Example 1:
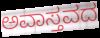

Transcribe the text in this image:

ಅವಾಸ್ತವದ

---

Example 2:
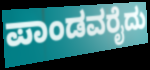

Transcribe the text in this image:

ಪಾಂಡವರೈದು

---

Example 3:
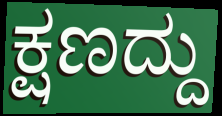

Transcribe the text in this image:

ಕ್ಷಣದ್ದು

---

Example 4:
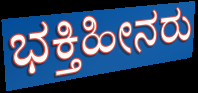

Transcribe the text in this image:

ಭಕ್ತಿಹೀನರು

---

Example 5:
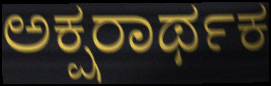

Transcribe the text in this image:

ಅಕ್ಷರಾರ್ಥಕ